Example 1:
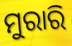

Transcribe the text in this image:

ମୁରାରି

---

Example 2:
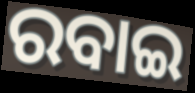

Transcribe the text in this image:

ରବାଇ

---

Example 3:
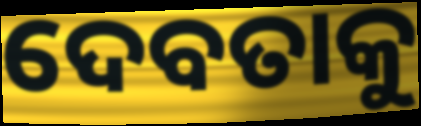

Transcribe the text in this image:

ଦେବତାକୁ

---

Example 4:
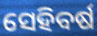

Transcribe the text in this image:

ସେହିବର୍ଷ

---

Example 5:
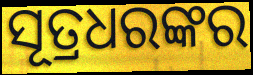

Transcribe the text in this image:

ସୂତ୍ରଧରଙ୍କର